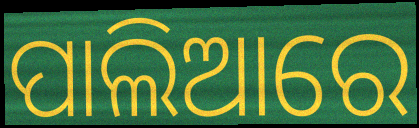
ପାଲିଆରେ